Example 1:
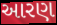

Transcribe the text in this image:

આરણ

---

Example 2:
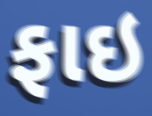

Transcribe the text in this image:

ફાઇ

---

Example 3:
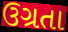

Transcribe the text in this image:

ઉગ્રતા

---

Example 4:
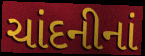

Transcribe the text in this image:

ચાંદનીનાં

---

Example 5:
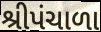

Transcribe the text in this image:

શ્રીપંચાળા